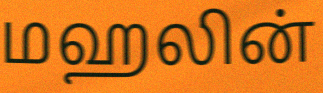
மஹலின்